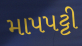
માપપટ્ટી